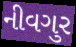
નીવગુર